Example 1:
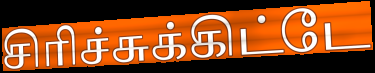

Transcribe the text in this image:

சிரிச்சுக்கிட்டே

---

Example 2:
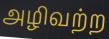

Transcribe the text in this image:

அழிவற்ற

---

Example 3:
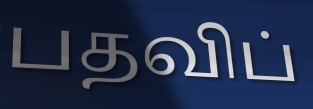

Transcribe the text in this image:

பதவிப்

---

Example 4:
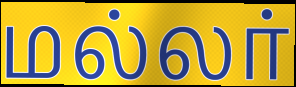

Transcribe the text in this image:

மல்லர்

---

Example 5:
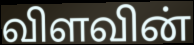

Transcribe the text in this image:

விளவின்